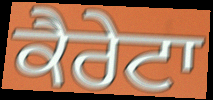
ਕੈਰੇਟਾ